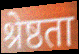
श्रेष्ठता